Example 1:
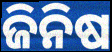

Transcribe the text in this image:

ଜିନିଷ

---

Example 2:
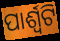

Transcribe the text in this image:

ପାର୍ଶ୍ଵଟି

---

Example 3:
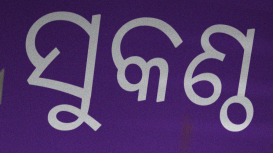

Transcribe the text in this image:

ସୁକଣ୍ଠ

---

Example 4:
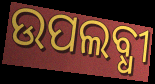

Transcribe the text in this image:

ଉପଲବ୍ଧୀ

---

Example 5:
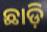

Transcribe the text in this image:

ଛାଡ଼ି